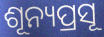
ଶୂନ୍ୟପ୍ରସୂ